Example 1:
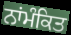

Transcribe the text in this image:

ਨਾਂਮੰਕਿਤ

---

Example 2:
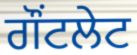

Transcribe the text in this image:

ਗੌਂਟਲੇਟ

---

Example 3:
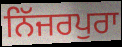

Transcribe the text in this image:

ਨਿੱਜਰਪੁਰਾ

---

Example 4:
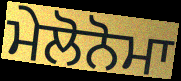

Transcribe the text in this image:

ਮੇਲੋਨੋਮਾ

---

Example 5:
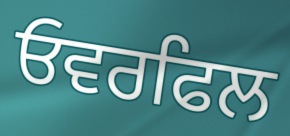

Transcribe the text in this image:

ਓਵਰਫਿਲ